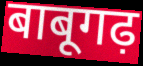
बाबूगढ़